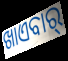
ଖାଏବାର୍